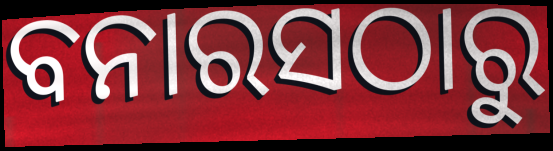
ବନାରସଠାରୁ